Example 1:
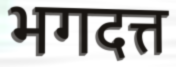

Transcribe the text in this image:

भगदत्त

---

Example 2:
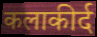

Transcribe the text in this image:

कलाकीर्द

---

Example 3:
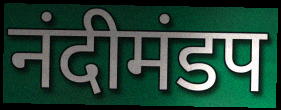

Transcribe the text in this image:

नंदीमंडप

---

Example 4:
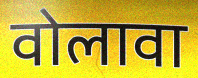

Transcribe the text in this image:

वोलावा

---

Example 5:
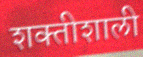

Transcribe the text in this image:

शक्‍तीशाली